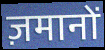
ज़मानों